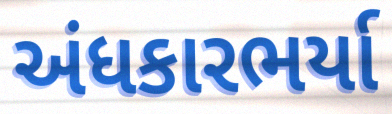
અંધકારભર્યા